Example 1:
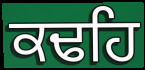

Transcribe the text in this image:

ਕਢਹਿ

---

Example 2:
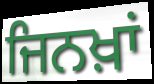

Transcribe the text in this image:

ਜਿਨਖ਼ਾਂ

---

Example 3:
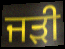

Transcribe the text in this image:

ਜੜੀ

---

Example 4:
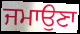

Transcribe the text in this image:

ਜਮਾਉਣਾ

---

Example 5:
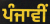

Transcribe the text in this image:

ਪੰਜਾਵੀਂ